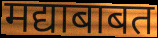
मद्याबाबत